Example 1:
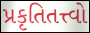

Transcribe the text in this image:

પ્રકૃતિતત્ત્વો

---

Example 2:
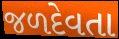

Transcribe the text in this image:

જળદેવતા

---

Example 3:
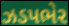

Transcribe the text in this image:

ઝડપભેર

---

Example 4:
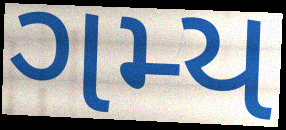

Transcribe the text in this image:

ગમ્ય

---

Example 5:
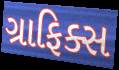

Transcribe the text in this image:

ગ્રાફિક્સ